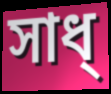
সাধ্